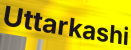
Uttarkashi